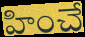
హించే